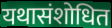
यथासंशोधित